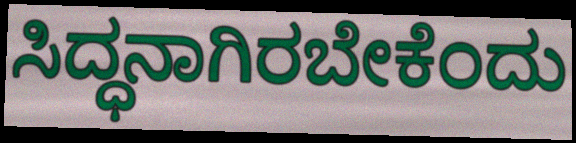
ಸಿದ್ಧನಾಗಿರಬೇಕೆಂದು